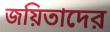
জয়িতাদের